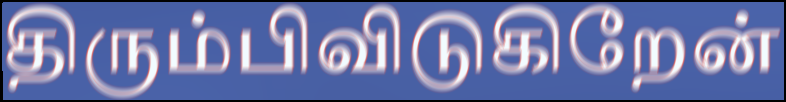
திரும்பிவிடுகிறேன்